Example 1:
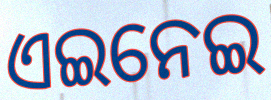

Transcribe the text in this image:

ଏଇନେଇ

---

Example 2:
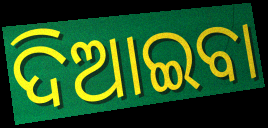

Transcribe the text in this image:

ଦିଆଇବା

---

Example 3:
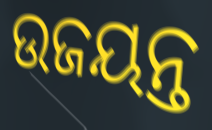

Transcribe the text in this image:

ଉଜୟନ୍ତ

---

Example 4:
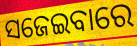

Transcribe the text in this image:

ସଜେଇବାରେ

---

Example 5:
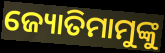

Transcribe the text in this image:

ଜ୍ୟୋତିମାମୁଙ୍କୁ